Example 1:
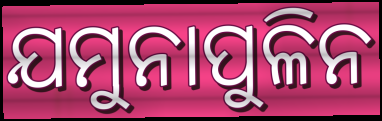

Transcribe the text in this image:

ଯମୁନାପୁଳିନ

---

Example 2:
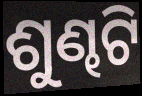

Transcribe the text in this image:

ଶୁଣ୍ଢଟି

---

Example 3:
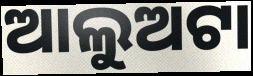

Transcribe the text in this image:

ଆଲୁଅଟା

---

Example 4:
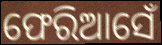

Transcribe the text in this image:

ଫେରିଆସେଁ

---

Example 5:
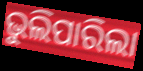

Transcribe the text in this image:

ଭୁଲିପାରିଲା